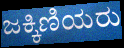
ಜಕ್ಕಿಣಿಯರು